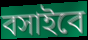
বসাইবে